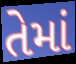
તેમાં